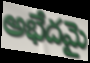
అభేదమై